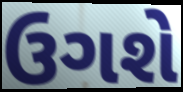
ઉગશે